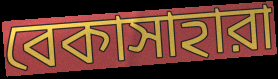
বেকাসাহারা